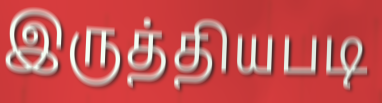
இருத்தியபடி